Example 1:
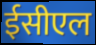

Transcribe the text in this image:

ईसीएल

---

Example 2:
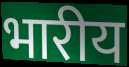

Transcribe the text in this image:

भारीय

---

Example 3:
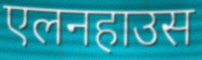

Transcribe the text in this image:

एलनहाउस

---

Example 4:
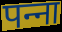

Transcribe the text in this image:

पन्‍ना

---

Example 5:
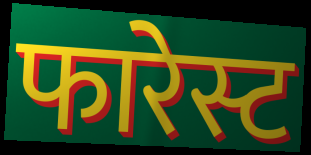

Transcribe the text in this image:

फारेस्‍ट